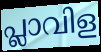
പ്ലാവിള